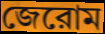
জেরোম